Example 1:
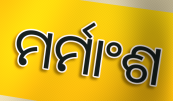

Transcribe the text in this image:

ମର୍ମାଂଶ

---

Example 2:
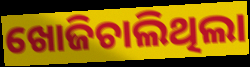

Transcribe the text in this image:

ଖୋଜିଚାଲିଥିଲା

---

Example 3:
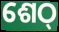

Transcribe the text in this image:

ଶେଠ୍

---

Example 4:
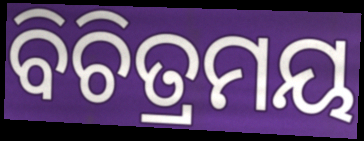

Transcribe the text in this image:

ବିଚିତ୍ରମୟ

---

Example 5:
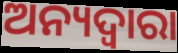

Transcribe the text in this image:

ଅନ୍ୟଦ୍ଵାରା